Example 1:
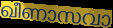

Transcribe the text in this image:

ഖീണാസവാ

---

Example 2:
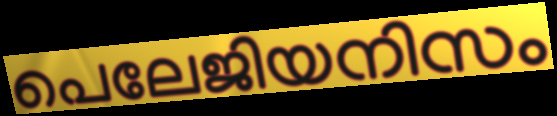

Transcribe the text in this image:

പെലേജിയനിസം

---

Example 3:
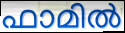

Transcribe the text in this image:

ഫാമിൽ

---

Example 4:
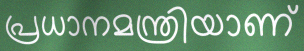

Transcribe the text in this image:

പ്രധാനമന്ത്രിയാണ്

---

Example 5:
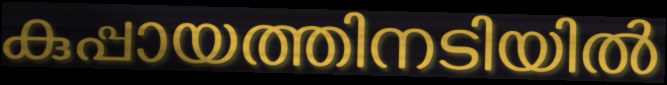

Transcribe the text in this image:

കുപ്പായത്തിനടിയിൽ